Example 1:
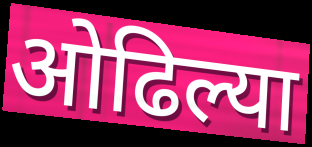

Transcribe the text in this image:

ओढिल्या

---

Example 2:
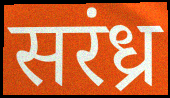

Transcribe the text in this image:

सरंध्र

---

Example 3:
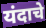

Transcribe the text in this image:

यंदाचे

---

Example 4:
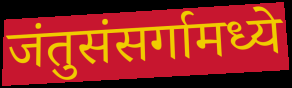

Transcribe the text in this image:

जंतुसंसर्गामध्ये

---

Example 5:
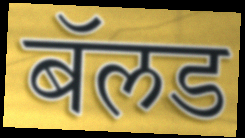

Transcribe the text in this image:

बॅलड